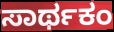
ಸಾರ್ಥಕಂ